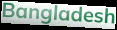
Bangladesh